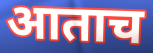
आताच